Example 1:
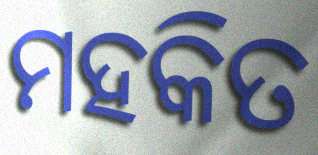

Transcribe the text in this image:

ମହକିତ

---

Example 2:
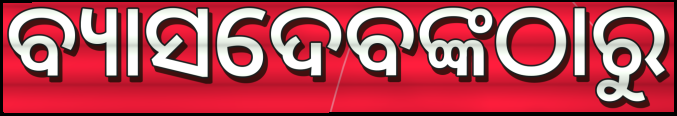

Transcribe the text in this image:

ବ୍ୟାସଦେବଙ୍କଠାରୁ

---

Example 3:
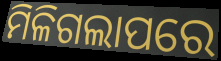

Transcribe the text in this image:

ମିଳିଗଲାପରେ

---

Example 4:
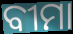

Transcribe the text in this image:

ବୀମା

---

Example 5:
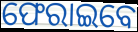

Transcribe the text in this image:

ଫେରାଇବେ